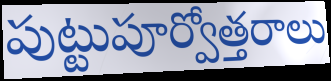
పుట్టుపూర్వోత్తరాలు